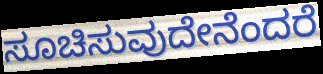
ಸೂಚಿಸುವುದೇನೆಂದರೆ